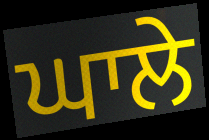
ਘਾਲੇ